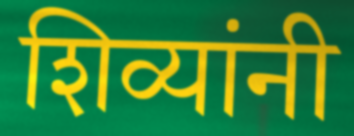
शिव्यांनी